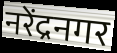
नरेंद्रनगर